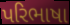
પરિભાષા